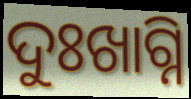
ଦୁଃଖାଗ୍ନି